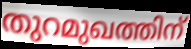
തുറമുഖത്തിന്